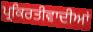
ਪ੍ਰਕਿਰਤੀਵਾਦੀਆਂ